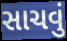
સાચવું